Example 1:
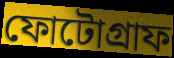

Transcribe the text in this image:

ফোটোগ্রাফ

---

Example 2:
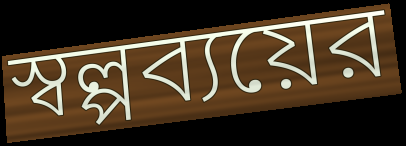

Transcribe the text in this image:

স্বল্পব্যয়ের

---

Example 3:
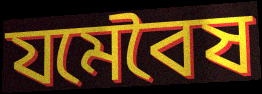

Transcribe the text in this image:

যমেবৈষ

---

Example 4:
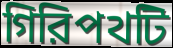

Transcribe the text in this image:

গিরিপথটি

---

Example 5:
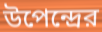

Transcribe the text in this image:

উপেন্দ্রের